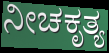
ನೀಚಕೃತ್ಯ